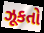
ઝૂકતો